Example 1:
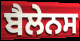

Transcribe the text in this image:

ਬੈਲੇਨਸ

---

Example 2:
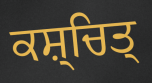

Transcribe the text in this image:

ਕਸ਼੍ਚਿਤ੍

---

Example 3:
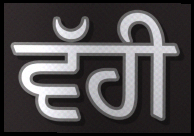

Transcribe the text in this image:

ਵੱਹੀ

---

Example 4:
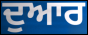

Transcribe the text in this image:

ਦੁਆਰ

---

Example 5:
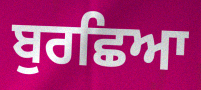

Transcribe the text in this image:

ਬੁਰਛਿਆ